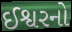
ઈશ્વરનો